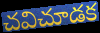
చవిచూడక